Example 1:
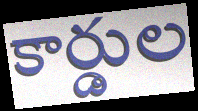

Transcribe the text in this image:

కార్డుల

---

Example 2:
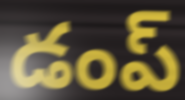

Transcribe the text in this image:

డంప్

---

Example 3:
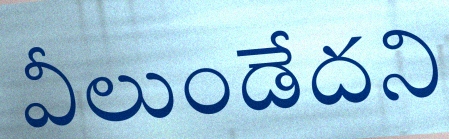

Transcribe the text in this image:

వీలుండేదని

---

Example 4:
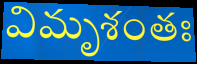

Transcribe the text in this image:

విమృశంతః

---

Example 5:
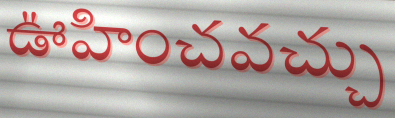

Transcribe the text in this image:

ఊహించవచ్చు